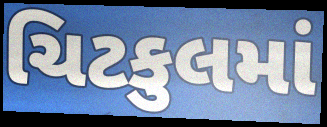
ચિટકુલમાં